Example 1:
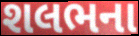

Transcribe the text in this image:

શલભના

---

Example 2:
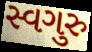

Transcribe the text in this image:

સ્વગુરુ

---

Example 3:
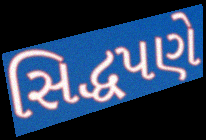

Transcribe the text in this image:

સિદ્ધપણે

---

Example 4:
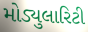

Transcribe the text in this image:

મોડ્યુલારિટી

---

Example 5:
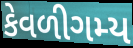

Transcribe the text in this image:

કેવળીગમ્ય